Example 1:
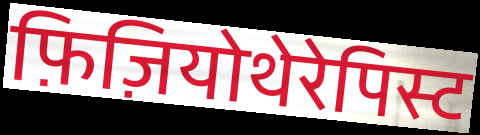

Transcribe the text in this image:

फ़िज़ियोथेरेपिस्ट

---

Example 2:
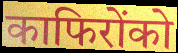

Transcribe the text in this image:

काफिरोंको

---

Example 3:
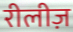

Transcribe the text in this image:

रीलीज़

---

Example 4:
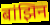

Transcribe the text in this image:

बांझिन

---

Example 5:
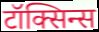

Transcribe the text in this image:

टॉक्सिन्स